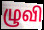
ழுவி